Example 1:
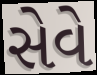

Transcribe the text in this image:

સેવે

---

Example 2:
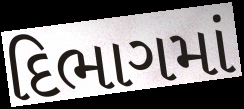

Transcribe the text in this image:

દિભાગમાં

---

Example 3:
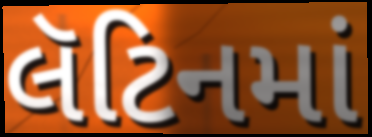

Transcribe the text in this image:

લૅટિનમાં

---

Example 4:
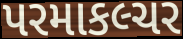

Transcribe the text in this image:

પરમાકલ્ચર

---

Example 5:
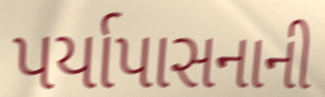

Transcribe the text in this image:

પર્યાપાસનાની